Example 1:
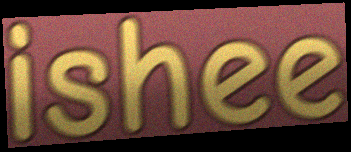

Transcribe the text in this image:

ishee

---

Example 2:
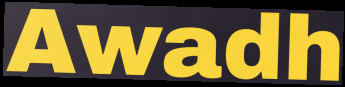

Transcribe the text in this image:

Awadh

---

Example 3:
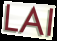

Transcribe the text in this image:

LAI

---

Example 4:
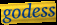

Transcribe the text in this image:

godess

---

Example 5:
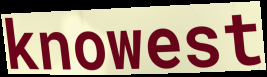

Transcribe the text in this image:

knowest